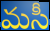
మసీ